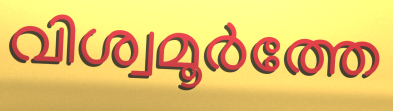
വിശ്വമൂർത്തേ